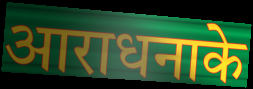
आराधनाके